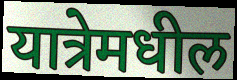
यात्रेमधील